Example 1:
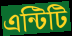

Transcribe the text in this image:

এন্টিটি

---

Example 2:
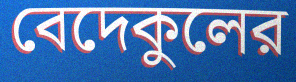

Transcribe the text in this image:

বেদেকুলের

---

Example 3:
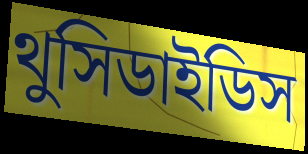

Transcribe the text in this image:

থুসিডাইডিস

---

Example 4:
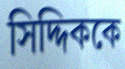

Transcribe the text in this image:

সিদ্দিককে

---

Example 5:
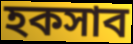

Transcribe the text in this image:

হকসাব